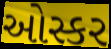
ઓસ્કર